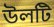
উলটি